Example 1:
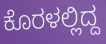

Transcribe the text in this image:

ಕೊರಳಲ್ಲಿದ್ದ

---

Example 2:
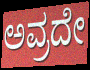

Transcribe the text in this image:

ಅವ್ರದೇ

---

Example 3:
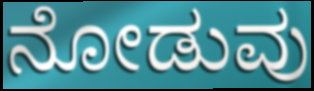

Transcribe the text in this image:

ನೋಡುವು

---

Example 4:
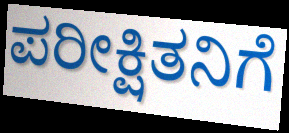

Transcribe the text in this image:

ಪರೀಕ್ಷಿತನಿಗೆ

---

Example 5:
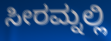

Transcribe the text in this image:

ಸೀರಮ್ನಲ್ಲಿ